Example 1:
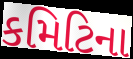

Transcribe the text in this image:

કમિટિના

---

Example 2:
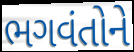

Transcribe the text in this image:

ભગવંતોને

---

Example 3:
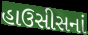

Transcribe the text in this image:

હાઉસીસનાં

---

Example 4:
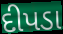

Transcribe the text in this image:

દીપડા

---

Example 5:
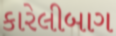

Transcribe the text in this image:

કારેલીબાગ